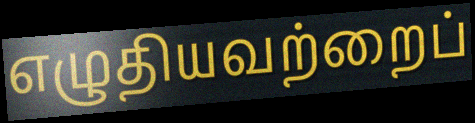
எழுதியவற்றைப்